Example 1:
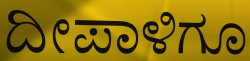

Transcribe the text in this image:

ದೀಪಾಳಿಗೂ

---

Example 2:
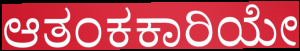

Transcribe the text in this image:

ಆತಂಕಕಾರಿಯೇ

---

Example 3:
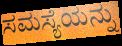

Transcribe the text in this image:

ಸಮಸ್ಯೆಯನ್ನು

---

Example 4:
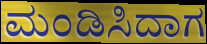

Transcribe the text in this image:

ಮಂಡಿಸಿದಾಗ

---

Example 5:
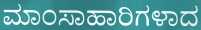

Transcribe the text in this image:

ಮಾಂಸಾಹಾರಿಗಳಾದ